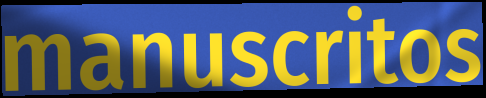
manuscritos